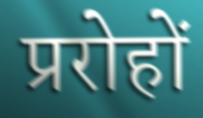
प्ररोहों